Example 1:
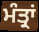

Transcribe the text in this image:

ਮੰਤ੍ਰਾਂ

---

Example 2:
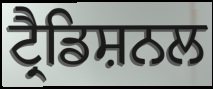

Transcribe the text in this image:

ਟ੍ਰੈਡਿਸ਼ਨਲ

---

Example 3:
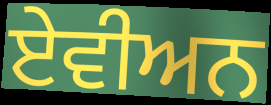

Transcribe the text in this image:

ਏਵੀਅਨ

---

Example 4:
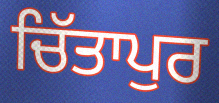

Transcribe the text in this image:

ਚਿੱਤਾਪੁਰ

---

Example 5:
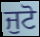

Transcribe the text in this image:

ਜੁਟੋ